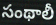
సంథాలీ